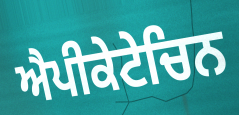
ਐਪੀਕੇਟੇਚਿਨ